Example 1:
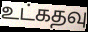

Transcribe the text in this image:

உட்கதவு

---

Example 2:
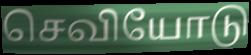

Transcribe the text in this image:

செவியோடு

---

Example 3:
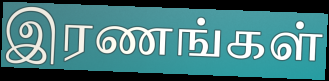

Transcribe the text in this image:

இரணங்கள்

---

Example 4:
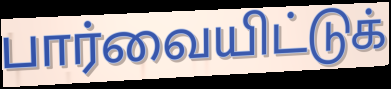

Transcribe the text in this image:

பார்வையிட்டுக்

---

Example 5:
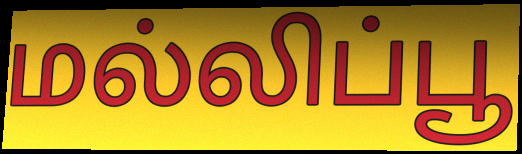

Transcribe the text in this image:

மல்லிப்பூ